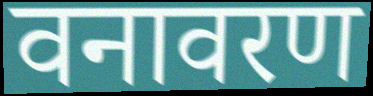
वनावरण